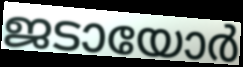
ജടായോർ